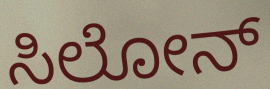
ಸಿಲೋನ್